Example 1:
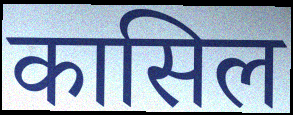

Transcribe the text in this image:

कासिल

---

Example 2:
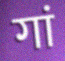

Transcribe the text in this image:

गां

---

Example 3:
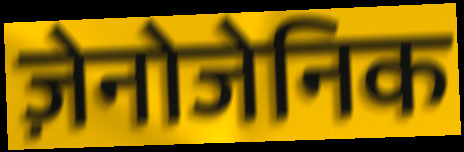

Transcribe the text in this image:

ज़ेनोजेनिक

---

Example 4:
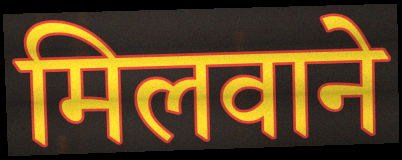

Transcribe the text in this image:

मिलवाने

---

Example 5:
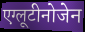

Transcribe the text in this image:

एग्लूटीनोजेन